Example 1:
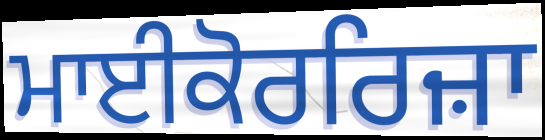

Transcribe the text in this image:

ਮਾਈਕੋਰਰਿਜ਼ਾ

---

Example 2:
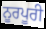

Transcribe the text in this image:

ਨੂਰਪੂਰੀ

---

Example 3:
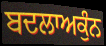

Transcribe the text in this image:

ਬਦਲਾਅਕੁੰਨ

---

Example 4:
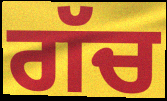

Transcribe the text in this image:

ਗੱਚ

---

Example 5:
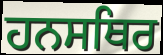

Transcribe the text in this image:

ਹਨਸਥਿਰ